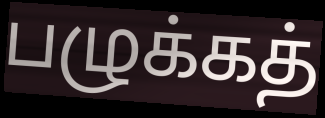
பழுக்கத்